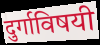
दुर्गाविषयी